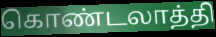
கொண்டலாத்தி